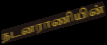
நடனராணியின்